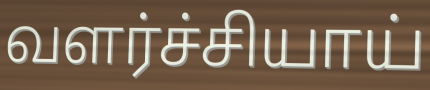
வளர்ச்சியாய்